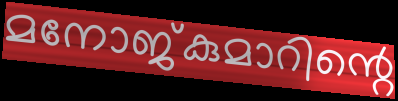
മനോജ്കുമാറിന്റെ